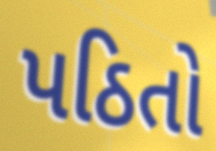
પઠિતો